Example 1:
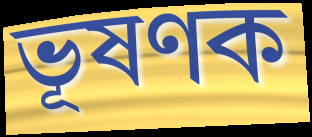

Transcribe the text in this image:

ভূষণক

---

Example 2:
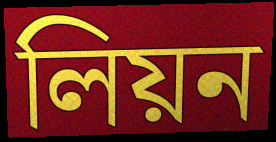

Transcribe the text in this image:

লিয়ন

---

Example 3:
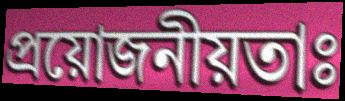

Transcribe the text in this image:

প্ৰয়োজনীয়তাঃ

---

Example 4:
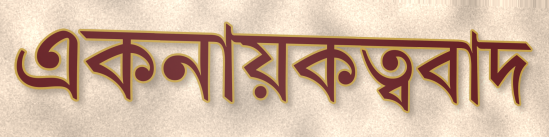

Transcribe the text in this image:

একনায়কত্ববাদ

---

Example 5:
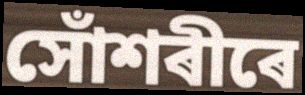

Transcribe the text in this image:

সোঁশৰীৰে